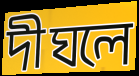
দীঘলে